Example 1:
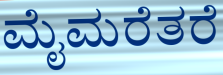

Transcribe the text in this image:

ಮೈಮರೆತರೆ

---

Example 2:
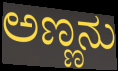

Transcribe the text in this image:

ಅಣ್ಣನು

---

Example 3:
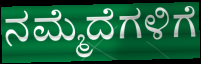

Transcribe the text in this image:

ನಮ್ಮೆದೆಗಳಿಗೆ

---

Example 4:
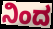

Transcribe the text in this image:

ನಿಂದ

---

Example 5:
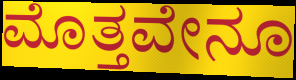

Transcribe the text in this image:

ಮೊತ್ತವೇನೂ